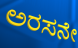
ಅರಸನೇ